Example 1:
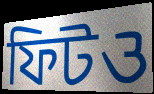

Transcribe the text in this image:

ফিটও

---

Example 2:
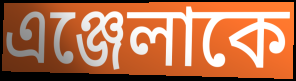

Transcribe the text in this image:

এঞ্জেলাকে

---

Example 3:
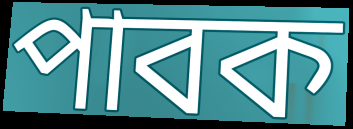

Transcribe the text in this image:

পাবক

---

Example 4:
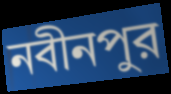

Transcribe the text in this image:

নবীনপুর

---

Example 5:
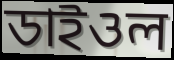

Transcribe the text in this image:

ডাইওল